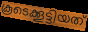
കൂടെക്കൂട്ടിയത്